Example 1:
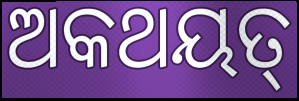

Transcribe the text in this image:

ଅକଥୟତ୍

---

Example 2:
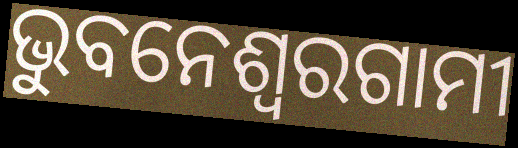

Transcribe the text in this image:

ଭୁବନେଶ୍ୱରଗାମୀ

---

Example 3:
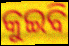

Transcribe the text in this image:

କୁଇବି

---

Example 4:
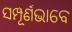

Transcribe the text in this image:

ସମ୍ପୂର୍ଣଭାବେ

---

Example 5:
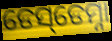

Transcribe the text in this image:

ଡେସ୍‌ଡେମ୍ନା